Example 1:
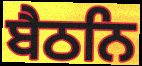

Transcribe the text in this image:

ਬੈਠਨਿ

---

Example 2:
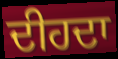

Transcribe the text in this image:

ਦੀਹਦਾ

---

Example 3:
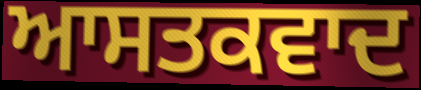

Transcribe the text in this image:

ਆਸਤਕਵਾਦ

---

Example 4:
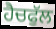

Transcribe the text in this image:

ਹੈਚਫੁੱਲ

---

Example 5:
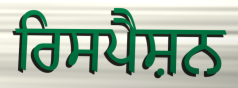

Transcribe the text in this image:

ਰਿਸਪੈਸ਼ਨ